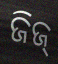
ଜିଜ୍